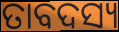
ତାବଦସ୍ୟ